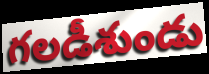
గలడీశుండు